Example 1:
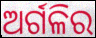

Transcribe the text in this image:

ଅର୍ଗଳିର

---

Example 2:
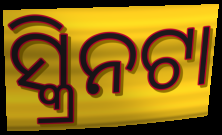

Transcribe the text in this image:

ସ୍କ୍ରିନଟା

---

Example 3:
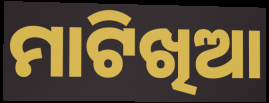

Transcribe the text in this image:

ମାଟିଖିଆ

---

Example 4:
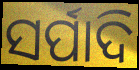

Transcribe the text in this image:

ସର୍ପାଦି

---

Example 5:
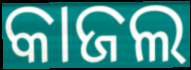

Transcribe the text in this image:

କାଜଲ